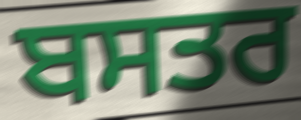
ਬਸਤਰ